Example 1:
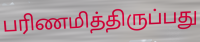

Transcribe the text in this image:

பரிணமித்திருப்பது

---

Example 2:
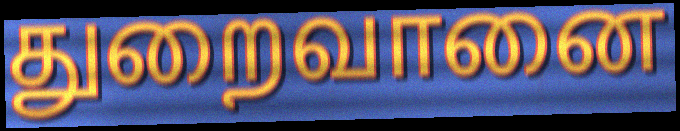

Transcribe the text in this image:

துறைவானை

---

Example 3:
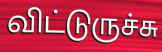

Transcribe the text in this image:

விட்டுருச்சு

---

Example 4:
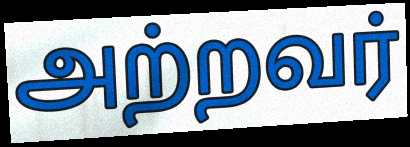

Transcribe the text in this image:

அற்றவர்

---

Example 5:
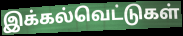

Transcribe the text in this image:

இக்கல்வெட்டுகள்